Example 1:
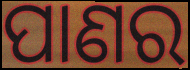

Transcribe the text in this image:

ପାଣର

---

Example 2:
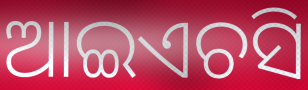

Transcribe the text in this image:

ଆଇଏଚସି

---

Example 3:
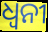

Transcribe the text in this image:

ଧ୍ବନୀ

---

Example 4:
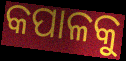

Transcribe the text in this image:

କପାଳକୁ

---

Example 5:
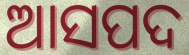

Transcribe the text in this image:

ଆସପଦ